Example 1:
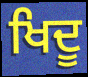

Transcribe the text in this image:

ਖਿਦੂ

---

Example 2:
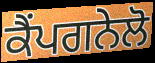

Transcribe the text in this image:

ਕੈਂਪਗਨੇਲੋ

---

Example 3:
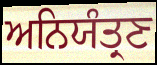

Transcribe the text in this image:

ਅਨਿਯੰਤ੍ਰਣ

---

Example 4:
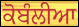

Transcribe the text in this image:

ਕੋਬੰਲੀਆ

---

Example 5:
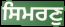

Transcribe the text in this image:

ਸਿਮਰਣੁ